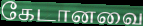
கேடானவை